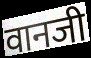
वानजी